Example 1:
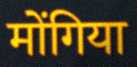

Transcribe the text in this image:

मोंगिया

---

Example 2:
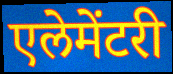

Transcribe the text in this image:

एलेमेंटरी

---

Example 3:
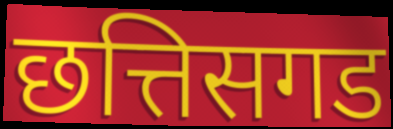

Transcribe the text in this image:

छत्तिसगड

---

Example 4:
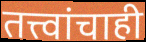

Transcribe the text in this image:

तत्त्वांचाही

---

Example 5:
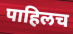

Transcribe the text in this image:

पाहिलच